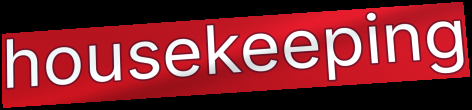
housekeeping